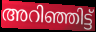
അറിഞ്ഞിട്ട്